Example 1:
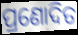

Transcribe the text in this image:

ପ୍ରଣୋଦିତ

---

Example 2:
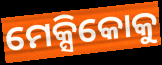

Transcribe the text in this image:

ମେକ୍ସିକୋକୁ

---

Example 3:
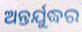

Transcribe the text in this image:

ଅନ୍ତର୍ଯୁଦ୍ଧର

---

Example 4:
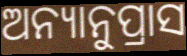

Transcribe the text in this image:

ଅନ୍ୟାନୁପ୍ରାସ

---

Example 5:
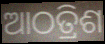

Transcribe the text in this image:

ଆଠତ୍ରିଶ